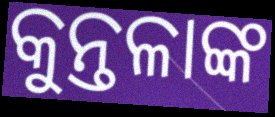
କୁନ୍ତଳାଙ୍କ